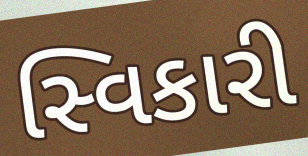
સ્વિકારી